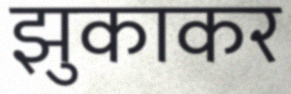
झुकाकर